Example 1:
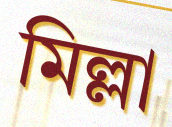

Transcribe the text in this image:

মিল্লা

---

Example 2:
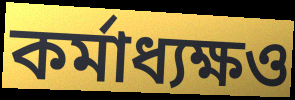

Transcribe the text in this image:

কর্মাধ্যক্ষও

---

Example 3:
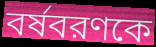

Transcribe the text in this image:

বর্ষবরণকে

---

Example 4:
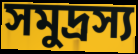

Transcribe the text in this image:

সমুদ্রস্য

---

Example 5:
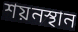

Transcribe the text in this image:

শয়নস্থান